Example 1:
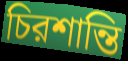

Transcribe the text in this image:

চিরশান্তি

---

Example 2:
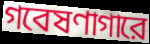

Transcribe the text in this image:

গবেষণাগারে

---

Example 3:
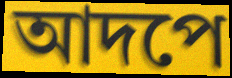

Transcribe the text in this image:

আদপে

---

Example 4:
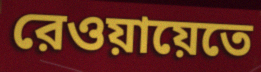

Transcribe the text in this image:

রেওয়ায়েতে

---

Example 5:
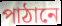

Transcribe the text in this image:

পাঠানে